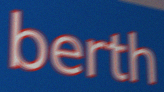
berth